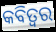
କବିତ୍ଵର